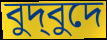
বুদ্‌বুদে